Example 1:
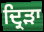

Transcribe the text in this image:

ਦ੍ਰਿੜਾ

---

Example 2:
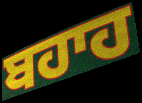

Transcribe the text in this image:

ਬਹਾਹ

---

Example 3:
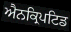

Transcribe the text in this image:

ਐਨਕ੍ਰਿਪਟਿਡ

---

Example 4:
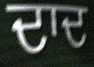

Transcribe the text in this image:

ਦਾਦ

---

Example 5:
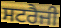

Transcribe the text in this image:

ਸਟਰੈਜੀ